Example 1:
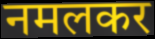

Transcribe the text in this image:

नमलकर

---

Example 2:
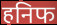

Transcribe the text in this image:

हनिफ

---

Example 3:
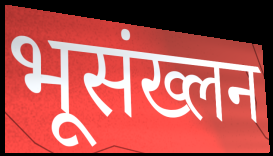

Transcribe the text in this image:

भूसंख्लन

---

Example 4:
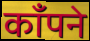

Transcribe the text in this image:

कॉँपने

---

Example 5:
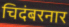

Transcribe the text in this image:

चिदंबरनार